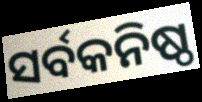
ସର୍ବକନିଷ୍ଠ